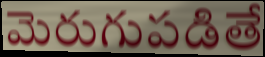
మెరుగుపడితే